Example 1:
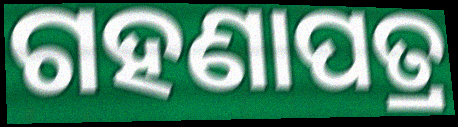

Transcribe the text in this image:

ଗହଣାପତ୍ର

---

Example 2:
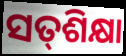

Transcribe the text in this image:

ସତ୍‌ଶିକ୍ଷା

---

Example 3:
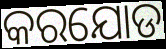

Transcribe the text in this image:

କରଯୋଡ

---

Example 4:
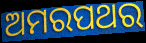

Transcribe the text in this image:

ଅମରପଥର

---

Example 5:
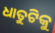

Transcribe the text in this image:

ଧାତୁଟିକୁ